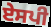
ਏਸਪੀ